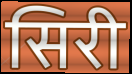
सिरी